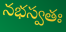
నభస్వతః